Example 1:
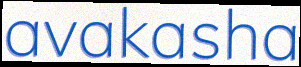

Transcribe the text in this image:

avakasha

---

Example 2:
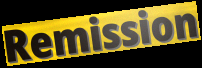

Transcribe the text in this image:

Remission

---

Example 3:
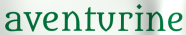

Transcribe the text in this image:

aventurine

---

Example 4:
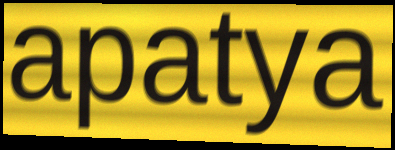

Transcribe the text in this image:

apatya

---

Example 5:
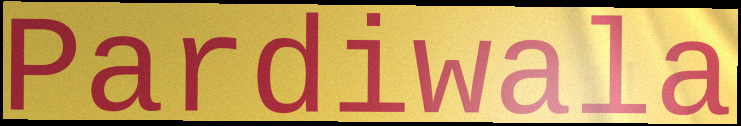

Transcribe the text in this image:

Pardiwala